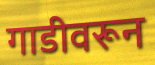
गाडीवरून